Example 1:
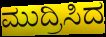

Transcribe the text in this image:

ಮುದ್ರಿಸಿದ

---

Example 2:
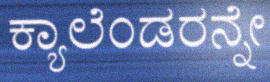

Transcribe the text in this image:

ಕ್ಯಾಲೆಂಡರನ್ನೇ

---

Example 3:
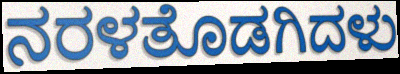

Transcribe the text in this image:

ನರಳತೊಡಗಿದಳು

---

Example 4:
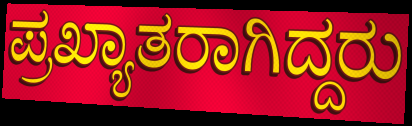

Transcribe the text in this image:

ಪ್ರಖ್ಯಾತರಾಗಿದ್ದರು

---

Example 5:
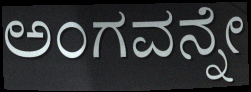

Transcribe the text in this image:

ಅಂಗವನ್ನೇ